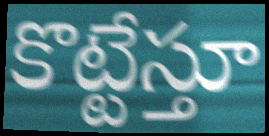
కొట్టేస్తూ